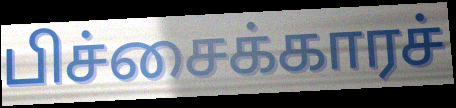
பிச்சைக்காரச்